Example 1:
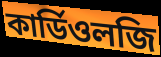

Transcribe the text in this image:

কার্ডিওলজি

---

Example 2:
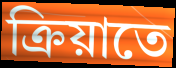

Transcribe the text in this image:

ক্রিয়াতে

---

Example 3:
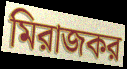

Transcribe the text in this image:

মিরাজকর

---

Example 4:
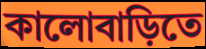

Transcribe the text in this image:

কালোবাড়িতে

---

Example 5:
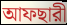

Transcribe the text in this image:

আফছারী